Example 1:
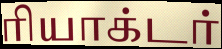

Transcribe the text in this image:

ரியாக்டர்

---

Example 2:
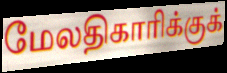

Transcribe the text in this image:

மேலதிகாரிக்குக்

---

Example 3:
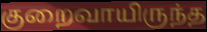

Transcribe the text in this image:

குறைவாயிருந்த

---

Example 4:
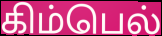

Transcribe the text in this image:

கிம்பெல்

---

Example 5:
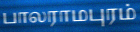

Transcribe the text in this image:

பாலராமபுரம்